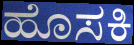
ಹೊಸಕಿ